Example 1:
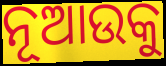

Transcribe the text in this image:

ନୂଆଉକୁ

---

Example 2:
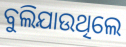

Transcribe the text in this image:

ବୁଲିଯାଉଥିଲେ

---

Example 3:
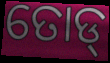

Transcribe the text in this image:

ତୋଡ୍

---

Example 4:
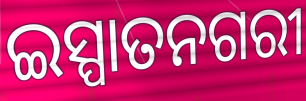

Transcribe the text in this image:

ଇସ୍ପାତନଗରୀ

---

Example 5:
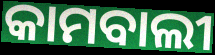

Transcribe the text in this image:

କାମବାଲୀ